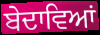
ਬੇਦਾਵਿਆਂ